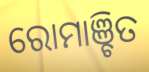
ରୋମାଞ୍ଚିତ